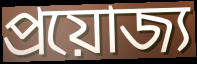
প্রয়োজ্য